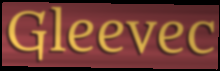
Gleevec